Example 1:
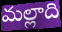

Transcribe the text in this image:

మల్లాది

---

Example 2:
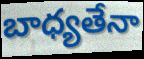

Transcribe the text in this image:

బాధ్యతేనా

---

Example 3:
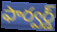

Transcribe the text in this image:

ఫార్వర్డ్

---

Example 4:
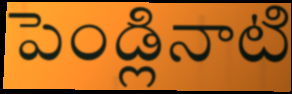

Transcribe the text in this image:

పెండ్లినాటి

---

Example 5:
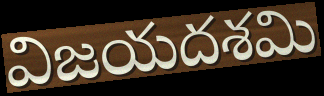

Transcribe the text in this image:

విజయదశమి